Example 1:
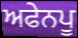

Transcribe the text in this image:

ਅਫੇਨਪੂ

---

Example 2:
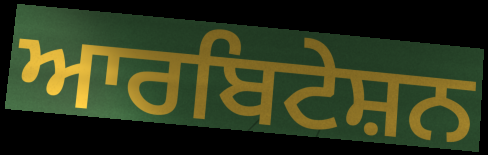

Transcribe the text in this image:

ਆਰਬਿਟੇਸ਼ਨ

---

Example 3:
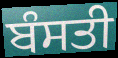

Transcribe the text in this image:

ਬੰਸਤੀ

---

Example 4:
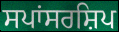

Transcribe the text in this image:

ਸਪਾਂਸਰਸ਼ਿਪ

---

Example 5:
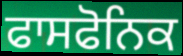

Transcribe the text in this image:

ਫਾਸਫੋਨਿਕ